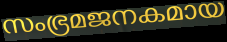
സംഭ്രമജനകമായ